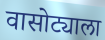
वासोट्याला